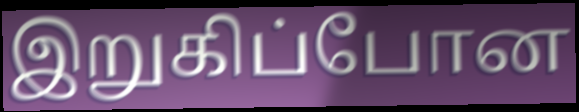
இறுகிப்போன